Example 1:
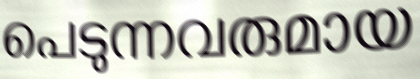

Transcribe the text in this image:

പെടുന്നവരുമായ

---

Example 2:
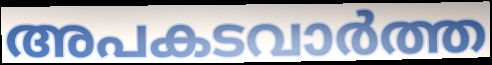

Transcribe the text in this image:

അപകടവാർത്ത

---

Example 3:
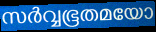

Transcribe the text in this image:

സർവ്വഭൂതമയോ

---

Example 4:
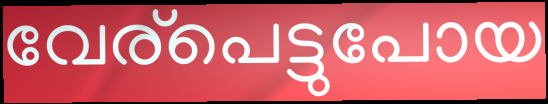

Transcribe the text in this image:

വേര്പെട്ടുപോയ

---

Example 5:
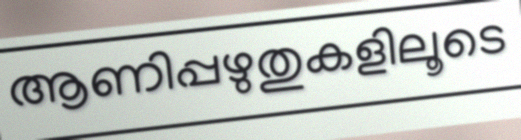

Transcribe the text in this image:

ആണിപ്പഴുതുകളിലൂടെ